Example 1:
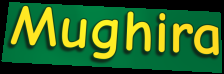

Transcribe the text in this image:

Mughira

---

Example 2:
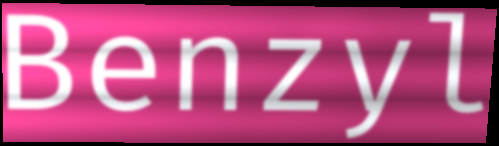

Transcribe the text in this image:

Benzyl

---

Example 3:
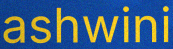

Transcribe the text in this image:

ashwini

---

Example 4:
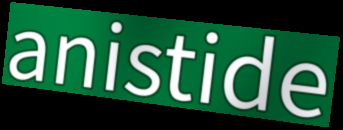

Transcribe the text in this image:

anistide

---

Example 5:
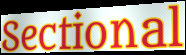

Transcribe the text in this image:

Sectional